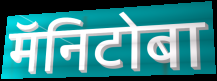
मॅनिटोबा